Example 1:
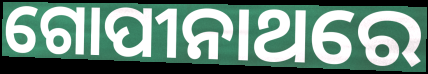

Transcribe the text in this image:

ଗୋପୀନାଥରେ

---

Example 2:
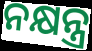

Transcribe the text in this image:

ନକ୍ଷନ୍ତ୍ର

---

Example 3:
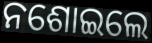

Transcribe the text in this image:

ନଶୋଇଲେ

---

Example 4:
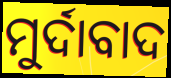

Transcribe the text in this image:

ମୁର୍ଦାବାଦ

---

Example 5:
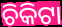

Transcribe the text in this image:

ଚିକିଟା